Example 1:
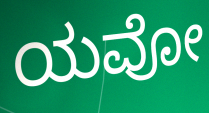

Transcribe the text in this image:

ಯವೋ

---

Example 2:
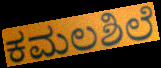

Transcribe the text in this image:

ಕಮಲಶಿಲೆ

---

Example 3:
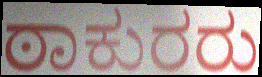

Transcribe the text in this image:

ಠಾಕುರರು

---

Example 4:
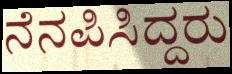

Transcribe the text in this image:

ನೆನಪಿಸಿದ್ದರು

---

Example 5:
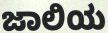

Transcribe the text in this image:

ಜಾಲಿಯ